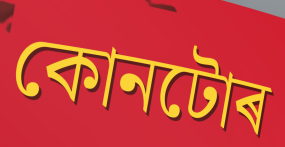
কোনটোৰ